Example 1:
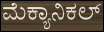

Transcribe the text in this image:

ಮೆಕ್ಯಾನಿಕಲ್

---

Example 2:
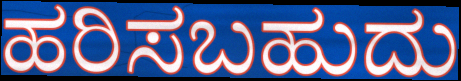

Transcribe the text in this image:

ಹರಿಸಬಹುದು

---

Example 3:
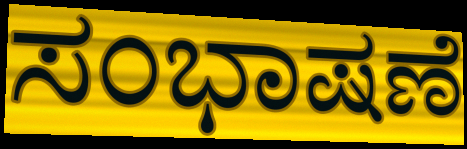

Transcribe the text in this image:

ಸಂಭಾಷಣೆ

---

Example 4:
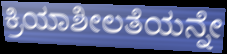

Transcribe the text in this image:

ಕ್ರಿಯಾಶೀಲತೆಯನ್ನೇ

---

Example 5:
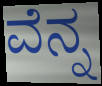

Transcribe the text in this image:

ವೆನ್ನ